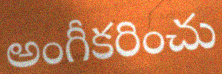
అంగీకరించు